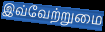
இவ்வேற்றுமை